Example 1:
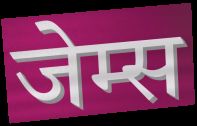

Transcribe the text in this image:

जेम्स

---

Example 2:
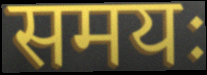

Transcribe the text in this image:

समयः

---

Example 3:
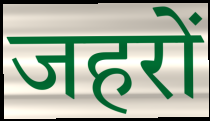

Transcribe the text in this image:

जहरों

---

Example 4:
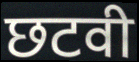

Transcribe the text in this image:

छटवी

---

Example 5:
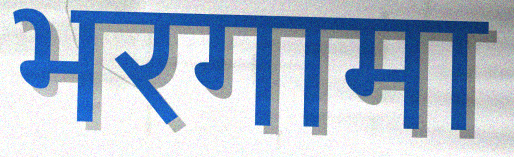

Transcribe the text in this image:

भरगामा